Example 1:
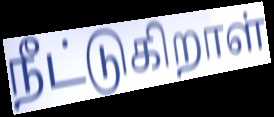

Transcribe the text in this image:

நீட்டுகிறாள்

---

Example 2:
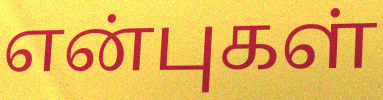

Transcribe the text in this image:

என்புகள்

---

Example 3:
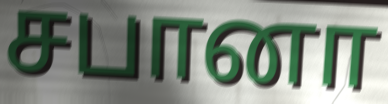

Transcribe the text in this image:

சபானா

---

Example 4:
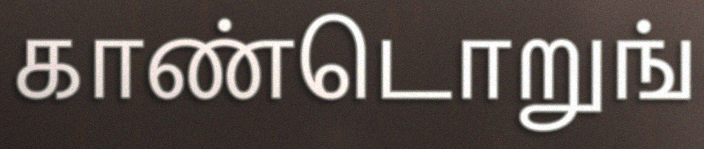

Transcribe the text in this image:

காண்டொறுங்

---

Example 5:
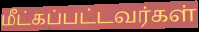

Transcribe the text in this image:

மீட்கப்பட்டவர்கள்